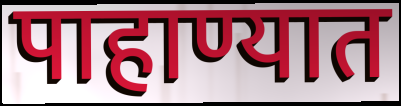
पाहाण्यात